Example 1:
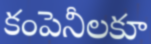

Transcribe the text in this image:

కంపెనీలకూ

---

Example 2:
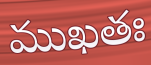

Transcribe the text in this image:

ముఖతః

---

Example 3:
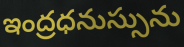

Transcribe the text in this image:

ఇంద్రధనుస్సును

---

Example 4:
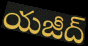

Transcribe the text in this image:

యజీద్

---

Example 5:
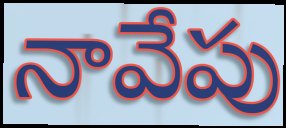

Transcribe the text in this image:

నావేపు